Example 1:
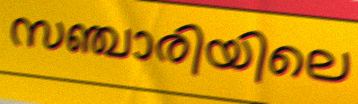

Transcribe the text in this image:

സഞ്ചാരിയിലെ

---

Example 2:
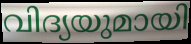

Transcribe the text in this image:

വിദ്യയുമായി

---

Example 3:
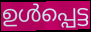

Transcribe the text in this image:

ഉൾപ്പെട്ട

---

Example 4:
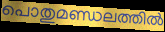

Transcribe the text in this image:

പൊതുമണ്ഡലത്തിൽ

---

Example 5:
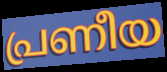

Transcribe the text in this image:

പ്രണീയ